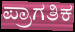
ಪ್ರಾಗತಿಕ